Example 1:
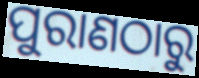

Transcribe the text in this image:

ପୁରାଣଠାରୁ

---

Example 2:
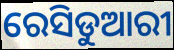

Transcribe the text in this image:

ରେସିଡୁଆରୀ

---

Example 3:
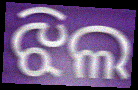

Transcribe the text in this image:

ଝିଲ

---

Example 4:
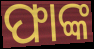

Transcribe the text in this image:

ଫାଙ୍କ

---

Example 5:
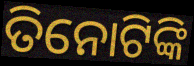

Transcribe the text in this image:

ତିନୋଟିଙ୍କି